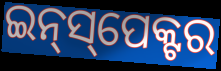
ଇନ୍‍ସ୍‌ପେକ୍ଟର